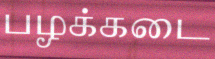
பழக்கடை